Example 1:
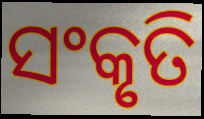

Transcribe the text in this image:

ସଂକୃତି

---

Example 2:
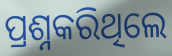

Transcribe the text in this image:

ପ୍ରଶ୍ନକରିଥିଲେ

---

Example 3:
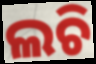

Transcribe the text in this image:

ଲଚି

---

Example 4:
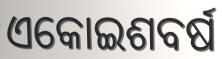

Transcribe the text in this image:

ଏକୋଇଶବର୍ଷ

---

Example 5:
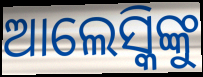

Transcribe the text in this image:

ଆଲେସ୍କିଙ୍କୁ